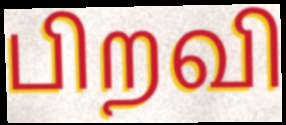
பிறவி